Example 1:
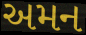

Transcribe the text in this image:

અમન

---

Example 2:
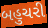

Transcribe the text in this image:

બહુચરી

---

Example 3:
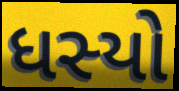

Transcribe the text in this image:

ધસ્યો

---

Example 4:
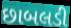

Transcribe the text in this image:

છાબલડી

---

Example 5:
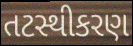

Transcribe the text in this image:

તટસ્થીકરણ